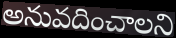
అనువదించాలని